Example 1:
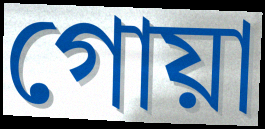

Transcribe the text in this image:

গোয়া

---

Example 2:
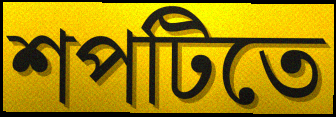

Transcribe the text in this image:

শপটিতে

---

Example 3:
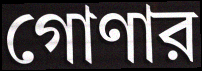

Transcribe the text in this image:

গোণার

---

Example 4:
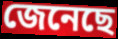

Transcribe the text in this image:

জেনেছে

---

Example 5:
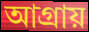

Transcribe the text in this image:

আগ্রায়